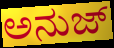
ಅನುಜ್